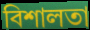
বিশালতা